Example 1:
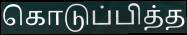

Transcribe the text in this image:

கொடுப்பித்த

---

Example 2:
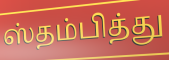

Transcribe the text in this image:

ஸ்தம்பித்து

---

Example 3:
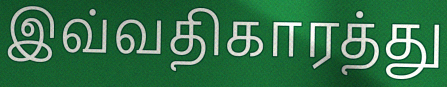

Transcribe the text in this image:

இவ்வதிகாரத்து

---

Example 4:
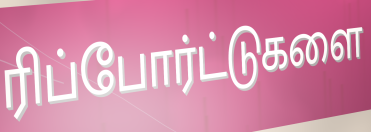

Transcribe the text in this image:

ரிப்போர்ட்டுகளை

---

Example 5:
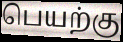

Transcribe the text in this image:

பெயற்கு